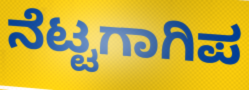
ನೆಟ್ಟಗಾಗಿಪ